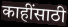
काहींसाठी